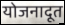
योजनादूत